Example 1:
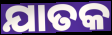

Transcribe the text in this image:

ଯାତକ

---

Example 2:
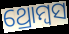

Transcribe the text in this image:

ଥ୍ରୋମ୍ବସ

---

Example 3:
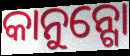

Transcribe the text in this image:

କାନୁନ୍ଗୋ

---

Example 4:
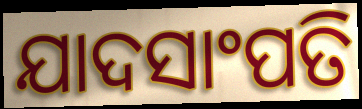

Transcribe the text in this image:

ଯାଦସାଂପତି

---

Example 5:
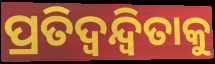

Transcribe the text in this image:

ପ୍ରତିଦ୍ୱନ୍ଦ୍ୱିତାକୁ